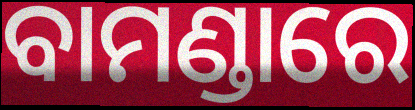
ବାମଣ୍ଡାରେ